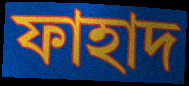
ফাহাদ